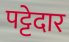
पट्टेदार